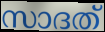
സാദത്